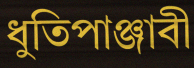
ধুতিপাঞ্জাবী